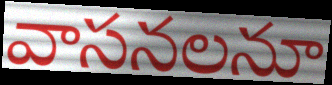
వాసనలనూ